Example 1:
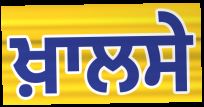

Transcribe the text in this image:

ਖ਼ਾਲਸੇ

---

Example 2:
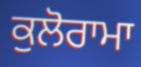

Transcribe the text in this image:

ਕੁਲੋਰਾਮਾ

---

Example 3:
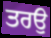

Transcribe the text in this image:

ਤਰਉ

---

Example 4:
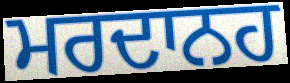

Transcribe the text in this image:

ਮਰਦਾਨਹ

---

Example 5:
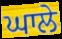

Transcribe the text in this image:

ਘਾਲੇ